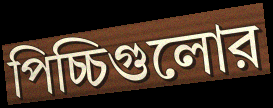
পিচ্চিগুলোর